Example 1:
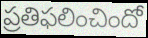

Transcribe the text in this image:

ప్రతిఫలించిందో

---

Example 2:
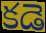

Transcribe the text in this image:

కడె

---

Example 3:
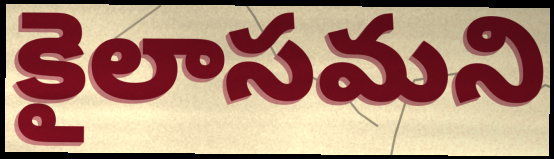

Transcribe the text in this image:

కైలాసమని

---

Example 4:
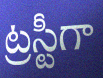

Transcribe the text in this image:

ట్రస్టీగా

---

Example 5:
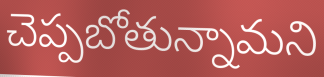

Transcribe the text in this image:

చెప్పబోతున్నామని